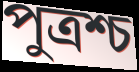
পুত্রশ্চ